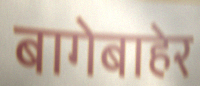
बागेबाहेर